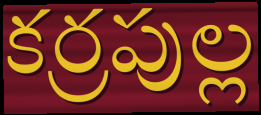
కర్రపుల్ల